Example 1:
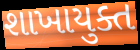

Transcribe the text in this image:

શાખાયુક્ત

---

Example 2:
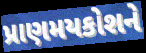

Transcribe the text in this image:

પ્રાણમયકોશને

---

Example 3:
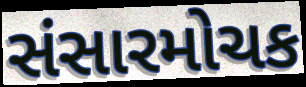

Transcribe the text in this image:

સંસારમોચક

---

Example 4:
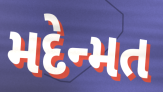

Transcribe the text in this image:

મદેન્મત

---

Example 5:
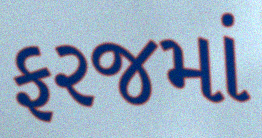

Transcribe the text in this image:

ફરજમાં